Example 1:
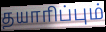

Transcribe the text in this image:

தயாரிப்பும்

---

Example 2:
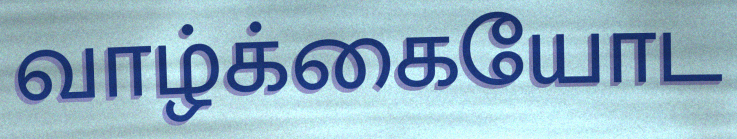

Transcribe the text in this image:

வாழ்க்கையோட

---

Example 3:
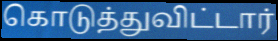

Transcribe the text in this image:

கொடுத்துவிட்டார்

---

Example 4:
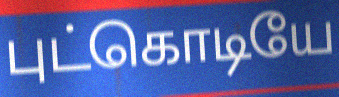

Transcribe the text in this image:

புட்கொடியே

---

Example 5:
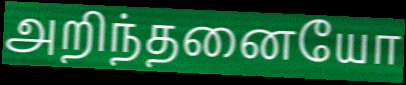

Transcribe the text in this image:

அறிந்தனையோ